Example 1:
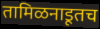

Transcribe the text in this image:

तामिळनाडूतच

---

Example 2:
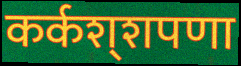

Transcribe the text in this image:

कर्कश्शपणा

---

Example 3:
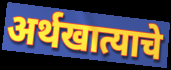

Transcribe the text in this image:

अर्थखात्याचे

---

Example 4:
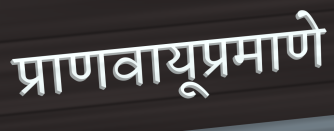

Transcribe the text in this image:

प्राणवायूप्रमाणे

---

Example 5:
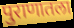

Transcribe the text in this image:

पुराणातला